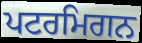
ਪਟਰਮਿਗਨ